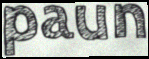
paun